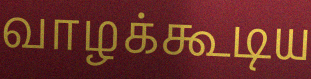
வாழக்கூடிய